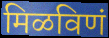
मिळविणं